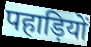
पहाड़ियों